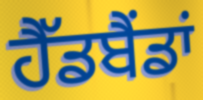
ਹੈੱਡਬੈਂਡਾਂ